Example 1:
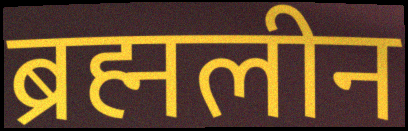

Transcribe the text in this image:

ब्रह्मलीन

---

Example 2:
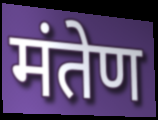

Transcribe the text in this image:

मंतेण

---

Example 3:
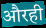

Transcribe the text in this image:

औरही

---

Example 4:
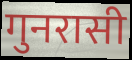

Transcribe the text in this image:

गुनरासी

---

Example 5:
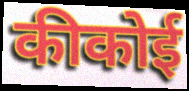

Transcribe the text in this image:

कीकोई